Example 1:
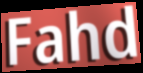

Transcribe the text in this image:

Fahd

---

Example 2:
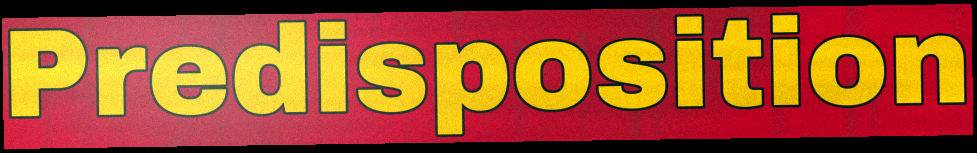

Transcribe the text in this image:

Predisposition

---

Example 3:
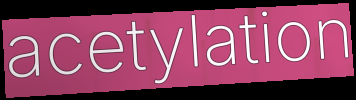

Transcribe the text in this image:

acetylation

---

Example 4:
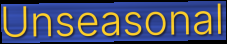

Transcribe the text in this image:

Unseasonal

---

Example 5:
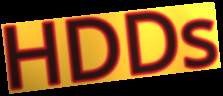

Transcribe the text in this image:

HDDs